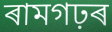
ৰামগঢ়ৰ